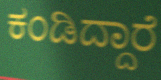
ಕಂಡಿದ್ದಾರೆ